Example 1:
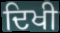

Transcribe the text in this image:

ਦਿਖੀ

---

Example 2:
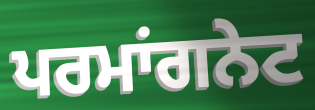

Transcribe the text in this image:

ਪਰਮਾਂਗਨੇਟ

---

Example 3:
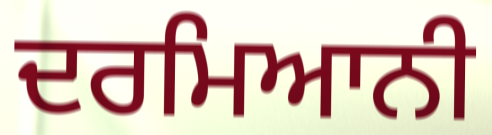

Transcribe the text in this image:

ਦਰਮਿਆਨੀ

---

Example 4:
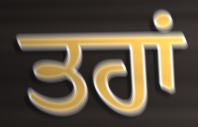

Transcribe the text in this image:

ਤਹਾਂ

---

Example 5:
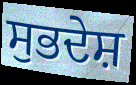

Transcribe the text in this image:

ਸੁਭਦੇਸ਼